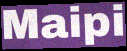
Maipi